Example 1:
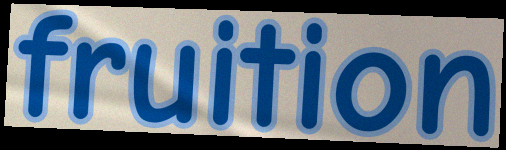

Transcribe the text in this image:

fruition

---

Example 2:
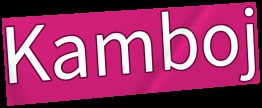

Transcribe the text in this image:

Kamboj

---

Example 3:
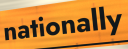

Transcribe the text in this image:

nationally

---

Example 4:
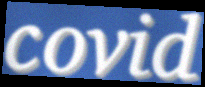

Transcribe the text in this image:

covid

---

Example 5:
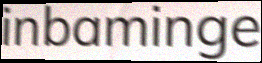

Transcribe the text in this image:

inbaminge